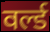
वर्ल्ड